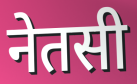
नेतसी